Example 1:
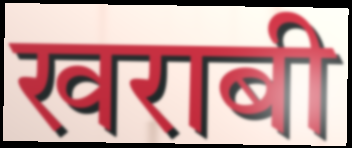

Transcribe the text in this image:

खराबी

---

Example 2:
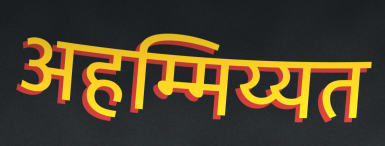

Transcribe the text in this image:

अहम्मिय्यत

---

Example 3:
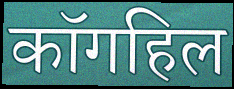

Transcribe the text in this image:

कॉगहिल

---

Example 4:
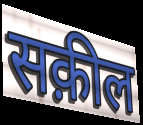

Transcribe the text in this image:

सक़ील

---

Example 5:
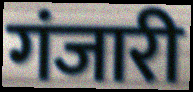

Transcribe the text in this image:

गंजारी